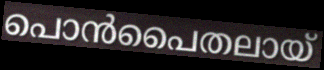
പൊൻപൈതലായ്